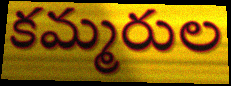
కమ్మరుల